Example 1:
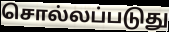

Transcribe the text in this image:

சொல்லப்படுது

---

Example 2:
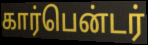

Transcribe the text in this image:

கார்பென்டர்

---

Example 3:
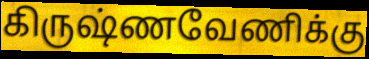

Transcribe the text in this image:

கிருஷ்ணவேணிக்கு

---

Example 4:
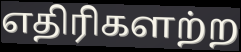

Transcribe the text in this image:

எதிரிகளற்ற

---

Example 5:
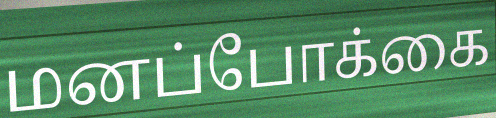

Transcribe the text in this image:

மனப்போக்கை